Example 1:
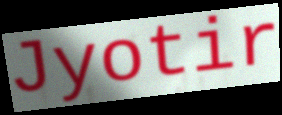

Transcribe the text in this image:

Jyotir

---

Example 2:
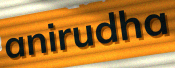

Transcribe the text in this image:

anirudha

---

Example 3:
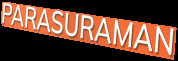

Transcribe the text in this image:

PARASURAMAN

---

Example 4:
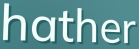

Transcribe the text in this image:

hather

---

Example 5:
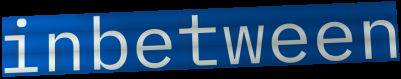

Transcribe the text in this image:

inbetween